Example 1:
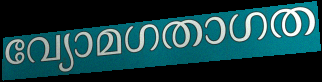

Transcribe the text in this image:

വ്യോമഗതാഗത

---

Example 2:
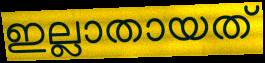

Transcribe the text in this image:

ഇല്ലാതായത്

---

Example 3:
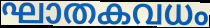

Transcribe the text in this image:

ഘാതകവധം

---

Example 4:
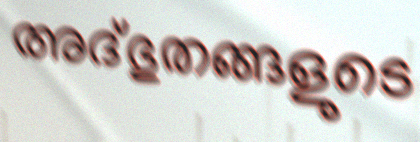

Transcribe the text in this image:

അദ്ഭുതങ്ങളുടെ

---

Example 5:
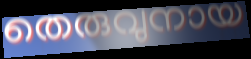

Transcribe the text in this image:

തെരുവുനായ